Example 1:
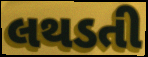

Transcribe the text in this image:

લથડતી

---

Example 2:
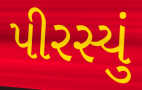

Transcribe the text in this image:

પીરસ્યું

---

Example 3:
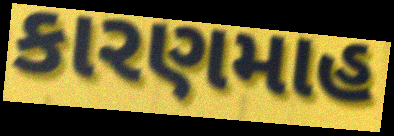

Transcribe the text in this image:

કારણમાહ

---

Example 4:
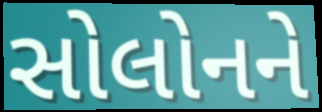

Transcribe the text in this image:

સોલોનને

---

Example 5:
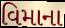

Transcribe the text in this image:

વિમાના